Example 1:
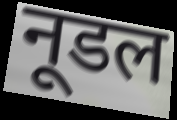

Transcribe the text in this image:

नूडल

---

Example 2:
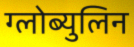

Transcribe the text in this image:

ग्लोब्युलिन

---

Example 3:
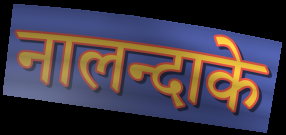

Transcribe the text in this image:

नालन्दाके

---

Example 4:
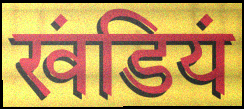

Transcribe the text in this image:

खंडियं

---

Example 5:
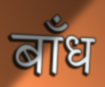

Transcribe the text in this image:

बाँध